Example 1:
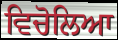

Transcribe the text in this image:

ਵਿਚੋਲਿਆ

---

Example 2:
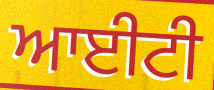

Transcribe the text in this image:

ਆਈਟੀ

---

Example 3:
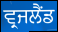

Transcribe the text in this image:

ਵ੍ਰਜਲੈਂਡ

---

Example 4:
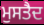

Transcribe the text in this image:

ਮੁਸਤੈਦ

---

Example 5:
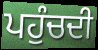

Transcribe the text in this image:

ਪਹੁੰਚਦੀ